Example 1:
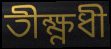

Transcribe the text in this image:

তীক্ষ্ণধী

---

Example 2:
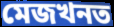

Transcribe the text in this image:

মেজখনত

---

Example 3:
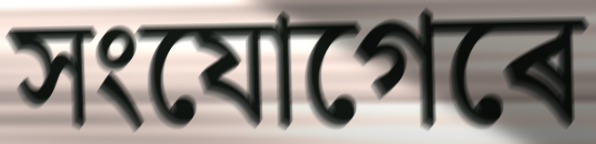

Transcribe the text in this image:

সংযোগেৰে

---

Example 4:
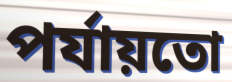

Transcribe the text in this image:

পৰ্যায়তো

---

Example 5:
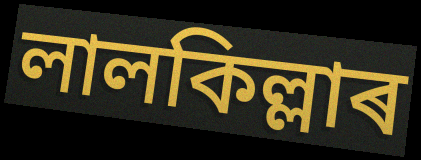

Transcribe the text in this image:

লালকিল্লাৰ